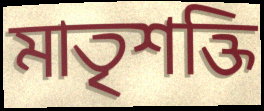
মাতৃশক্তি